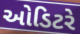
ઓડિટરે